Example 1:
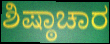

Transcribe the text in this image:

ಶಿಷ್ಠಾಚಾರ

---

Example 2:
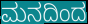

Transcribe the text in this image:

ಮನದಿಂದ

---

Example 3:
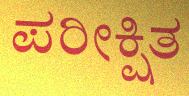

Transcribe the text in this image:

ಪರೀಕ್ಷಿತ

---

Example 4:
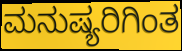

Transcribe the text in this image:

ಮನುಷ್ಯರಿಗಿಂತ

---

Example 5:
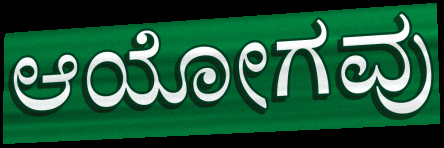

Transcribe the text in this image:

ಆಯೋಗವು